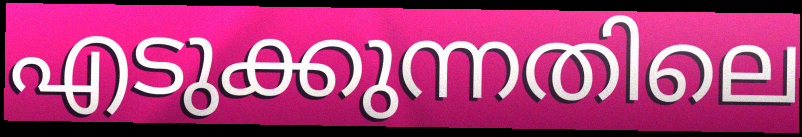
എടുക്കുന്നതിലെ